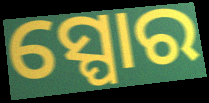
ସ୍ପୋର